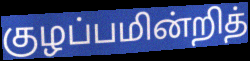
குழப்பமின்றித்